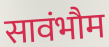
सावंभौम